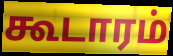
கூடாரம்